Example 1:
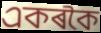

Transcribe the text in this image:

একৰকৈ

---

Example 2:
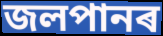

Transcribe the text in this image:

জলপানৰ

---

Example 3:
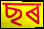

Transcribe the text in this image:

ছৰ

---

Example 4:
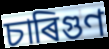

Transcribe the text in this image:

চাৰিগুণ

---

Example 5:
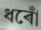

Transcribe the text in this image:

ধৰোঁ